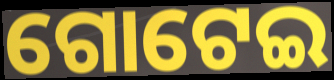
ଗୋଟେଇ